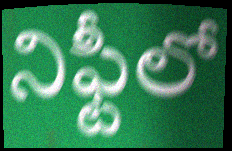
నిఫ్టీలో